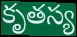
కృతస్య